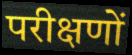
परीक्षणों